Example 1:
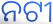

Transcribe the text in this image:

ନଟୀ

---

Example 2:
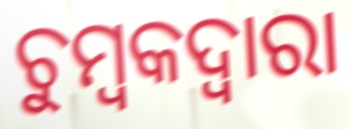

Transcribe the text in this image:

ଚୁମ୍ବକଦ୍ବାରା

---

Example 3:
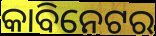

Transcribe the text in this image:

କାବିନେଟର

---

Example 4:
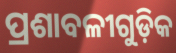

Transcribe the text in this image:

ପ୍ରଶାବଳୀଗୁଡ଼ିକ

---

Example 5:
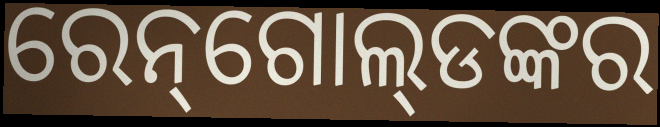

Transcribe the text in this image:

ରେନ୍‌ଗୋଲ୍‌ଡଙ୍କର